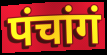
पंचांगं